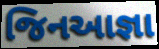
જિનઆજ્ઞા